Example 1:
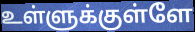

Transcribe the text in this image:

உள்ளுக்குள்ளே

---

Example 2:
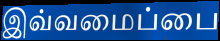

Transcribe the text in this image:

இவ்வமைப்பை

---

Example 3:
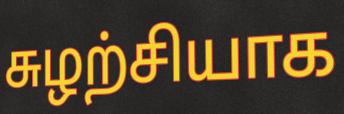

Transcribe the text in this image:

சுழற்சியாக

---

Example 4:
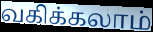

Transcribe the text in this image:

வகிக்கலாம்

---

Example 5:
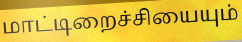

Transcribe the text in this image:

மாட்டிறைச்சியையும்